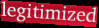
legitimized